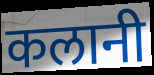
कलानी